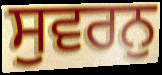
ਸੁਵਰਨੁ